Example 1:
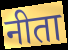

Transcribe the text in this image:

नीता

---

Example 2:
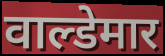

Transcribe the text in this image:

वाल्डेमार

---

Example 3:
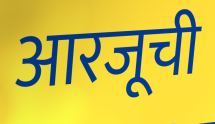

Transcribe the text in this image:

आरजूची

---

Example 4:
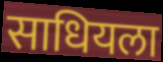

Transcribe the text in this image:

साधियला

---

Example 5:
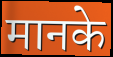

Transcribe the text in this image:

मानके